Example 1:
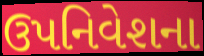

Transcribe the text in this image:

ઉપનિવેશના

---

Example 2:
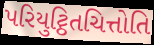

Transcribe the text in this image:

પરિયુટ્ઠિતચિત્તોતિ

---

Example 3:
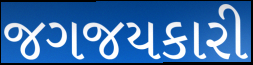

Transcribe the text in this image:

જગજયકારી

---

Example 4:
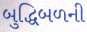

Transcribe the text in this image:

બુદ્ધિબળની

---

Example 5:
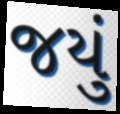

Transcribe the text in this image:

જયું